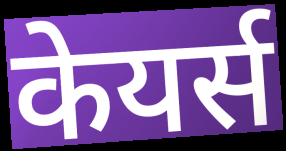
केयर्स